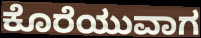
ಕೊರೆಯುವಾಗ